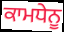
ਕਾਮਧੇਨੂ